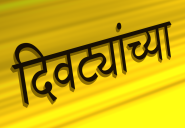
दिवट्यांच्या